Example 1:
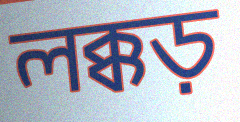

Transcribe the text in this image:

লক্কড়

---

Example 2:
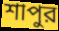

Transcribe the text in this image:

শাপুর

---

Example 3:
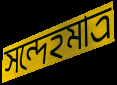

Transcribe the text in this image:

সন্দেহমাত্র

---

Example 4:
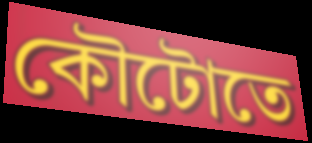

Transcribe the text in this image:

কৌটোতে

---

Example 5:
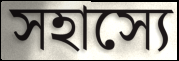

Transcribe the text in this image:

সহাস্যে